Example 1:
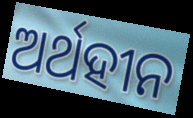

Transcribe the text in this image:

ଅର୍ଥହୀନ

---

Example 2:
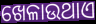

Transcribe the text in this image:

ଖେଳାଉଥାଏ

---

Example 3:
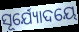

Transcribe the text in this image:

ସୂର୍ଯ୍ୟୋଦୟେ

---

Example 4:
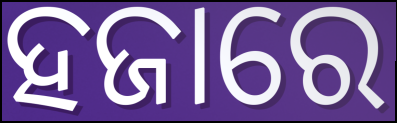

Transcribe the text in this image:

ହଜାରେ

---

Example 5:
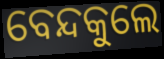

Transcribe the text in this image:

ବେନ୍ଦକୁଲେ